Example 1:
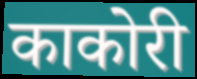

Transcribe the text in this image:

काकोरी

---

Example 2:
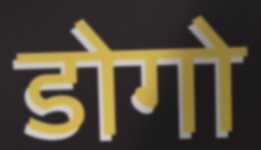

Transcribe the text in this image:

डोगो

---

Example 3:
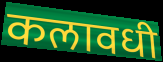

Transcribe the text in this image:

कलावधी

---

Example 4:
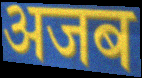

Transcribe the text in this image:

अजब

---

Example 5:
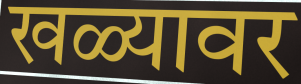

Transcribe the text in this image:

खळ्यावर